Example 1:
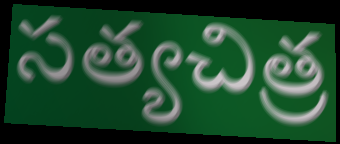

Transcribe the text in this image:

సత్యచిత్ర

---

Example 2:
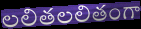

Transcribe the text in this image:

లలితలలితంగా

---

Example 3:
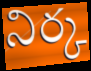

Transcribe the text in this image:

నిర్క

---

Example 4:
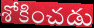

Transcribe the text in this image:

శోకించడు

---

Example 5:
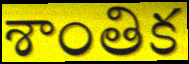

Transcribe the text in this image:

శాంతిక